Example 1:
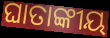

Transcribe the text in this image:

ଘାତାଙ୍କୀୟ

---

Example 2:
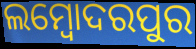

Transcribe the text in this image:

ଲମ୍ବୋଦରପୁର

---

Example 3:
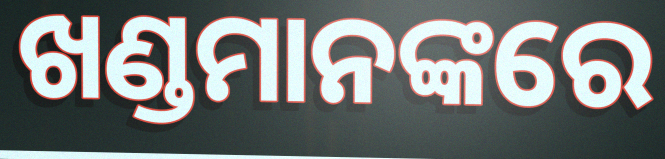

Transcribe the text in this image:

ଖଣ୍ଡମାନଙ୍କରେ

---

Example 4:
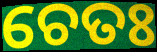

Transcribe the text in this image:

ଚେତଃ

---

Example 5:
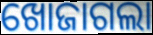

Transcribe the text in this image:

ଖୋଜାଗଲା